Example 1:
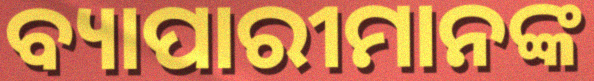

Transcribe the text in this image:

ବ୍ୟାପାରୀମାନଙ୍କ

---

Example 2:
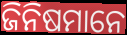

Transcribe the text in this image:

ଜିନିଷମାନେ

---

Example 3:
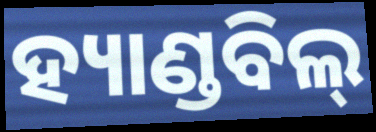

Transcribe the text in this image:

ହ୍ୟାଣ୍ଡବିଲ୍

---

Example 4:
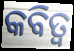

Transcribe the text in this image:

କବିତ୍ବ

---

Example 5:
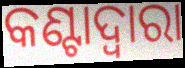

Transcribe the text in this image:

କଣ୍ଟାଦ୍ୱାରା